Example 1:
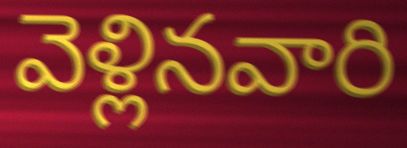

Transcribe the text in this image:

వెళ్లినవారి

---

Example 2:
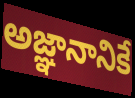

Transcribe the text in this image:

అజ్ఞానానికే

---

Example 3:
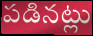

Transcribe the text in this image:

పడినట్లు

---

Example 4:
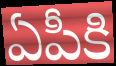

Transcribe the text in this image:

ఏపీకి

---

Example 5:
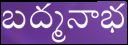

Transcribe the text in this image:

బద్మనాభ